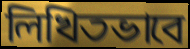
লিখিতভাবে